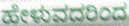
ಹೇಳುವದರಿಂದ